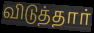
விடுத்தார்